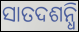
ସାତଦଶନ୍ଧି